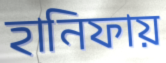
হানিফায়